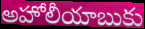
అహోలీయాబుకు